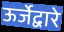
ऊर्जेद्वारे